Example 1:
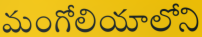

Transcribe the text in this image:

మంగోలియాలోని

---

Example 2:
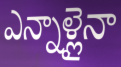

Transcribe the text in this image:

ఎన్నాళ్లైనా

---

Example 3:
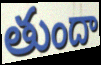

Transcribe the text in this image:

తుందా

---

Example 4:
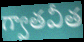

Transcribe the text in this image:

గ్వాతవీత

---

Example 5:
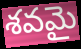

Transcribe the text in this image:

శవమై